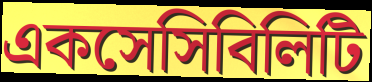
একসেসিবিলিটি